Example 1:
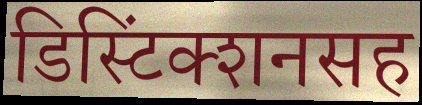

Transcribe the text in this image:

डिस्टिंक्शनसह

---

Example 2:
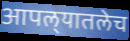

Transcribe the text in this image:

आपल्यातलेच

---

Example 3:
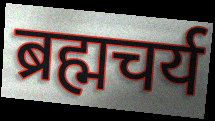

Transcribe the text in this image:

ब्रह्मचर्य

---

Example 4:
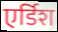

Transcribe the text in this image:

एर्डिश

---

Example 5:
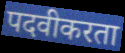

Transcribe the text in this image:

पदवीकरता